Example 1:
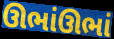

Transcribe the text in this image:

ઊભાંઊભાં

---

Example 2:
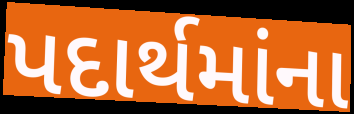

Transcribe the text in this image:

પદાર્થમાંના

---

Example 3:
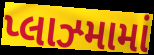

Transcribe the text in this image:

પ્લાઝ્મામાં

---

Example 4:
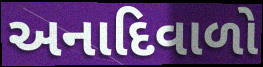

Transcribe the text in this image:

અનાદિવાળો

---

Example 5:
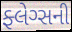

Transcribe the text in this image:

ફ્લેગ્સની